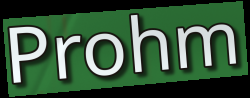
Prohm